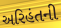
અરિહંતની